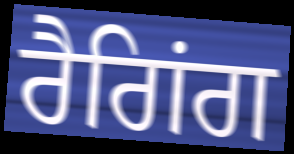
ਰੈਗਿਂਗ